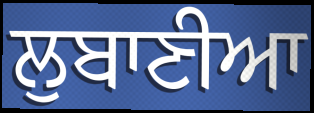
ਲੁਬਾਣੀਆ